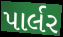
પાર્લર